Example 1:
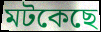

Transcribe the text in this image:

মটকেছে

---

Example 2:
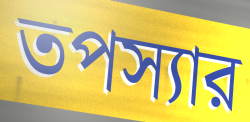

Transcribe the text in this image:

তপস্যার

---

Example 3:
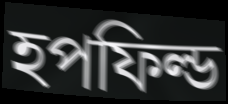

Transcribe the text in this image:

হপফিল্ড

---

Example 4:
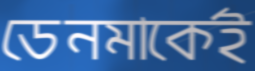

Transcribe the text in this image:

ডেনমার্কেই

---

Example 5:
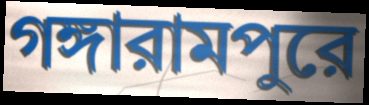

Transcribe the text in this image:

গঙ্গারামপুরে